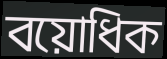
বয়োধিক